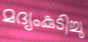
മദ്യംകുടിച്ചു